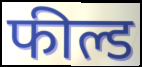
फील्ड